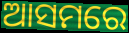
ଆସମରେ